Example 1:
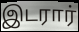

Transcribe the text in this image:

இடரார்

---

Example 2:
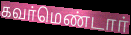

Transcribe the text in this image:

கவர்மெண்டார்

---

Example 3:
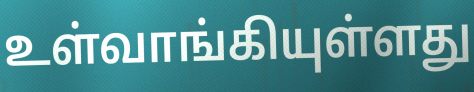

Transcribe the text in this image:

உள்வாங்கியுள்ளது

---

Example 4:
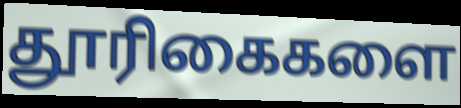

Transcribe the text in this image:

தூரிகைகளை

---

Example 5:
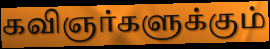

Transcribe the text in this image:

கவிஞர்களுக்கும்